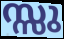
സ്സു